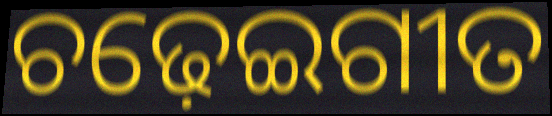
ଚଢ଼େଇଗୀତ